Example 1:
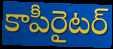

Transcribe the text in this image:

కాపీరైటర్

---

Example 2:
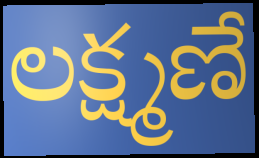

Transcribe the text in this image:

లక్ష్మణే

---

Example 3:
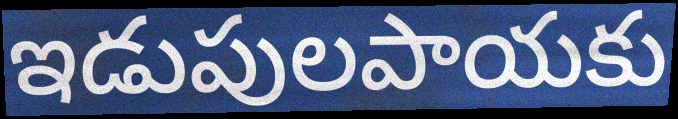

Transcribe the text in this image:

ఇడుపులపాయకు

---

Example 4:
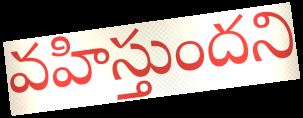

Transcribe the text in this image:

వహిస్తుందని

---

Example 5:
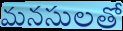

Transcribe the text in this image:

మనసులతో